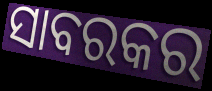
ସାବରକର